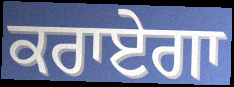
ਕਰਾਏਗਾ